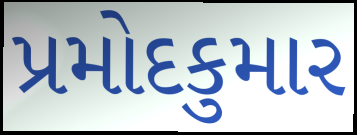
પ્રમોદકુમાર